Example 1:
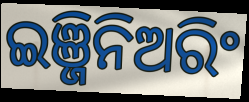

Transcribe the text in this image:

ଇଞ୍ଜିନିଅରିଂ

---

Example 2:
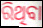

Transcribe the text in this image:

ରିଥିବା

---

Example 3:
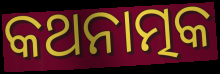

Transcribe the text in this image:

କଥନାତ୍ମକ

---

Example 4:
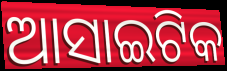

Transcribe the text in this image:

ଆସାଇଟିକ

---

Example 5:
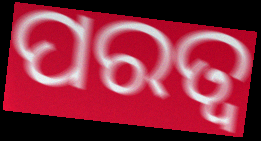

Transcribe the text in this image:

ପରତ୍ୱ